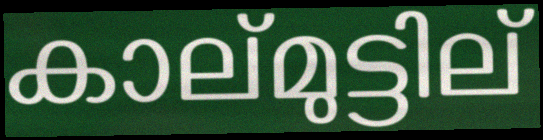
കാല്മുട്ടില്